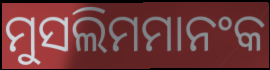
ମୁସଲିମମାନଂକ